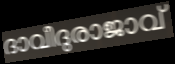
ദാവീദുരാജാവ്